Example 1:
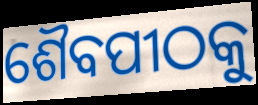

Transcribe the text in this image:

ଶୈବପୀଠକୁ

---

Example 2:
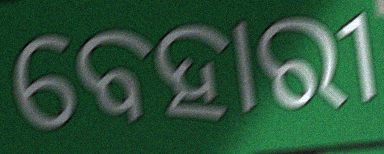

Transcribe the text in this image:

ବେହାରୀ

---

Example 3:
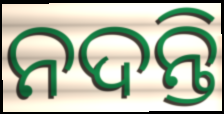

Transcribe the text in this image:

ନଦନ୍ତି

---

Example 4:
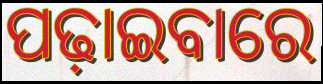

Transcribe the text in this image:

ପଢ଼ାଇବାରେ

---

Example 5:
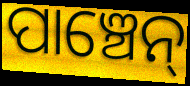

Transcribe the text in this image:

ପାଞ୍ଚେନ୍